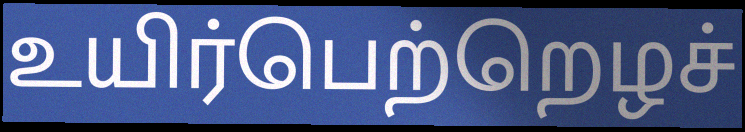
உயிர்பெற்றெழச்